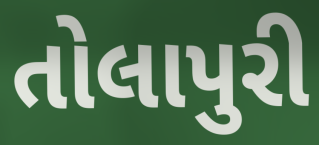
તોલાપુરી